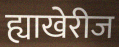
ह्याखेरीज